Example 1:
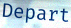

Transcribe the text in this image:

Depart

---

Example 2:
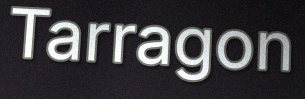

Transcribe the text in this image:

Tarragon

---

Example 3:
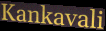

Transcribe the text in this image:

Kankavali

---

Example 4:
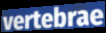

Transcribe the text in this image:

vertebrae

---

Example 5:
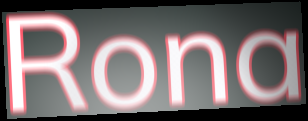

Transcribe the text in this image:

Rona